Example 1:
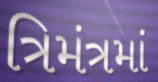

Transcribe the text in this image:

ત્રિમંત્રમાં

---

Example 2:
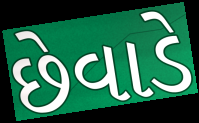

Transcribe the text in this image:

છેવાડે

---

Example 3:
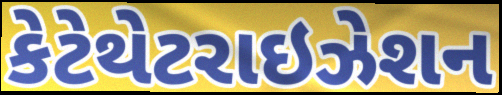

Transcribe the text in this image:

કેટેથેટરાઇઝેશન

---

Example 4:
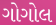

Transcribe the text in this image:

ગોગોલ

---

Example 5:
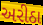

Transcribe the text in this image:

અરીઠા